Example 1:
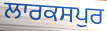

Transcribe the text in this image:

ਲਾਰਕਸਪੁਰ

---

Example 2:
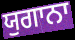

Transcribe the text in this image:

ਯੁਗਾਨਾ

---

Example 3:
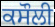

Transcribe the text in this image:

ਕਸੌਲੀ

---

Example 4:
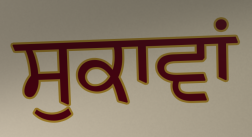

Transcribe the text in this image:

ਸੁਕਾਵਾਂ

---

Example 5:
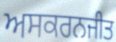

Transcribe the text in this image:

ਅਸਕਰਨਜੀਤ